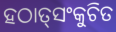
ହଠାତ୍‌ସଂକୁଚିତ